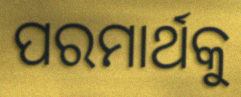
ପରମାର୍ଥକୁ